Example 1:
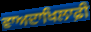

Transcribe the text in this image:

ਵਾਅਦਾਖਿਲਾਫ਼ੀ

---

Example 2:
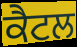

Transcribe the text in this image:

ਕੈਟਲ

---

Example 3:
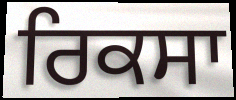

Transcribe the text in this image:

ਰਿਕਸਾ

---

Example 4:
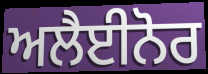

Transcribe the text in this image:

ਅਲੈਈਨੋਰ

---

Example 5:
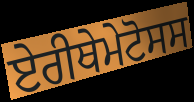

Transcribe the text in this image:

ਏਰੀਥੇਮੇਟੋਸਸ